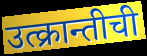
उत्क्रान्तीची